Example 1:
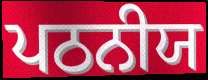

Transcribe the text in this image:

ਪਠਨੀਯ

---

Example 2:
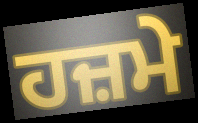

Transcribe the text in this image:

ਹਜ਼ਮੇ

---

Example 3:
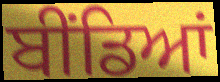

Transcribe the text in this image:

ਬੀਂਡਿਆਂ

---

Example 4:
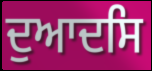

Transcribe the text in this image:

ਦੁਆਦਸਿ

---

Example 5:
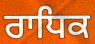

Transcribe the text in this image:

ਰਾਧਿਕ